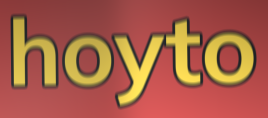
hoyto